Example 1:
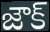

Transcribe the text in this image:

జౌక్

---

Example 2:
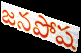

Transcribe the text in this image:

జనపోష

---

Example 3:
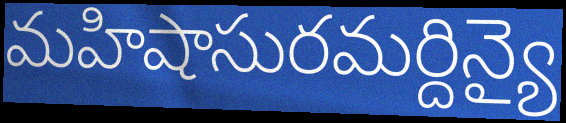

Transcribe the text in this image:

మహిషాసురమర్దిన్యై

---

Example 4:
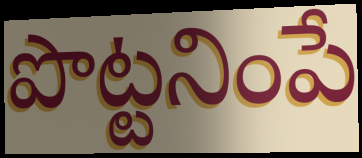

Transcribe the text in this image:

పొట్టనింపే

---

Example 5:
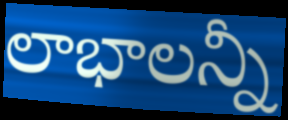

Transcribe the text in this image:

లాభాలన్నీ